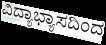
ವಿದ್ಯಾಭ್ಯಾಸದಿಂದ